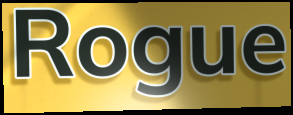
Rogue